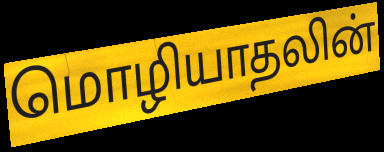
மொழியாதலின்